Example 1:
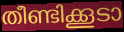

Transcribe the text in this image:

തീണ്ടിക്കൂടാ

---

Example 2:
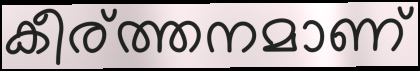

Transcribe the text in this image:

കീര്ത്തനമാണ്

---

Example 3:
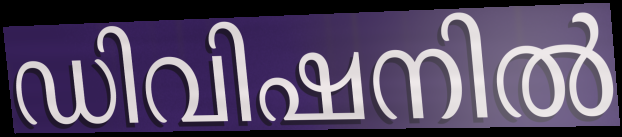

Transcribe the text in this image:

ഡിവിഷനിൽ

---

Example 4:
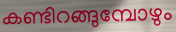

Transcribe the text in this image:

കണ്ടിറങ്ങുമ്പോഴും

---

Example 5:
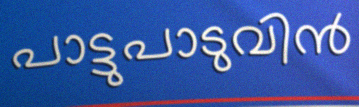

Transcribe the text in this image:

പാട്ടുപാടുവിൻ